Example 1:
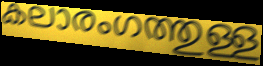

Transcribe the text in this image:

കലാരംഗത്തുള്ള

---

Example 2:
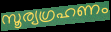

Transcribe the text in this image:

സൂര്യഗ്രഹണം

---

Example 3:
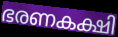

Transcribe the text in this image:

ഭരണകക്ഷി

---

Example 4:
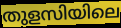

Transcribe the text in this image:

തുളസിയിലെ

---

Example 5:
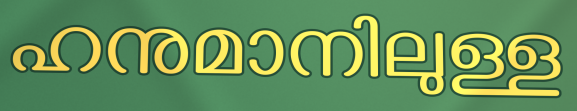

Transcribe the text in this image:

ഹനുമാനിലുള്ള